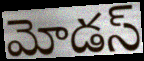
మోడస్